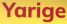
Yarige